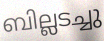
ബില്ലടച്ചു